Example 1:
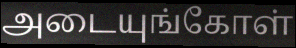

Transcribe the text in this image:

அடையுங்கோள்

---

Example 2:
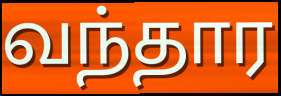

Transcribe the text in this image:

வந்தார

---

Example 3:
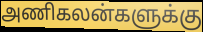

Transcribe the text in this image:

அணிகலன்களுக்கு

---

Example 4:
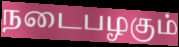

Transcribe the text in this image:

நடைபழகும்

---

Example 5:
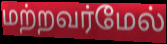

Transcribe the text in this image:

மற்றவர்மேல்